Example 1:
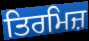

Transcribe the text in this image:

ਤਿਰਮਿਜ਼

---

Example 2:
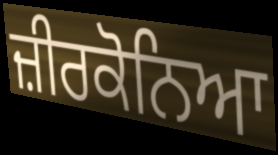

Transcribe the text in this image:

ਜ਼ੀਰਕੋਨਿਆ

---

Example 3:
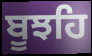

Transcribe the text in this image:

ਬੂਝਹਿ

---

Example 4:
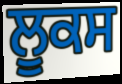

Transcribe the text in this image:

ਲੂਕਸ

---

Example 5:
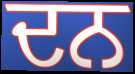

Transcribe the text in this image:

ਦਨ